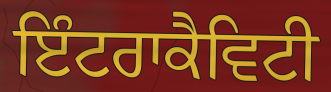
ਇੰਟਰਾਕੈਵਿਟੀ